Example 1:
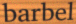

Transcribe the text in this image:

barbel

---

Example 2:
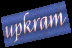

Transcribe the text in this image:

upkram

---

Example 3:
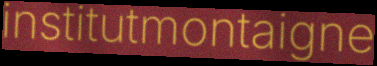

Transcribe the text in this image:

institutmontaigne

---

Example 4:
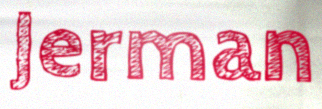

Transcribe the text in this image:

Jerman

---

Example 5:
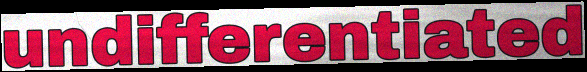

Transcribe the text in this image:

undifferentiated